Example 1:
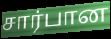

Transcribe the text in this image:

சார்பான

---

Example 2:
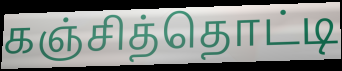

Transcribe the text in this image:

கஞ்சித்தொட்டி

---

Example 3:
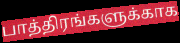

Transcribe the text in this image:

பாத்திரங்களுக்காக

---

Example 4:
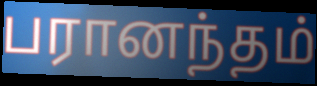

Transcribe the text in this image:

பரானந்தம்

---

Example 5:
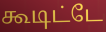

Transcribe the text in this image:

கூடிட்டே